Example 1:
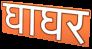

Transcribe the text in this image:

घाघर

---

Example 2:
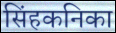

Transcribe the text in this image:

सिंहकनिका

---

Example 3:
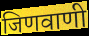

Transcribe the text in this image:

जिणवाणी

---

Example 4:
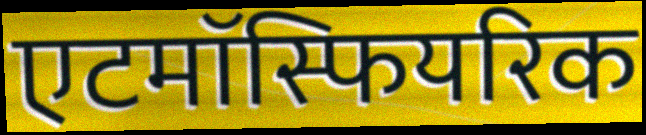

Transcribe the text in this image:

एटमॉस्फियरिक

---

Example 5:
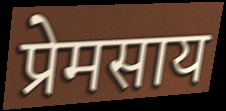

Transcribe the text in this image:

प्रेमसाय